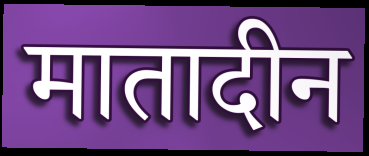
मातादीन